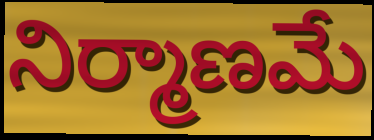
నిర్మాణమే